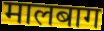
मालबाग